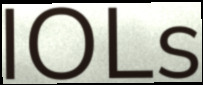
IOLs